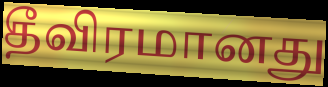
தீவிரமானது